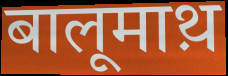
बालूमाथ़